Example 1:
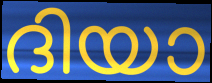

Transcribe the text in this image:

ദിയാ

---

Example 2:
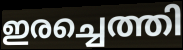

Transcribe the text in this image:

ഇരച്ചെത്തി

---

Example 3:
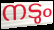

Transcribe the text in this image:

നടും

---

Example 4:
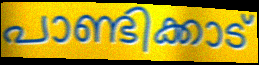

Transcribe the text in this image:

പാണ്ടിക്കാട്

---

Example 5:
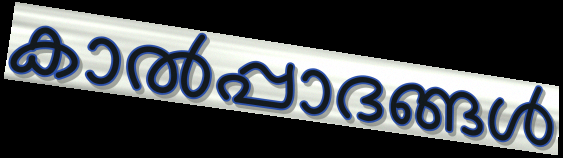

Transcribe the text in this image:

കാൽപ്പാദങ്ങൾ